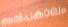
അൽപകാലം